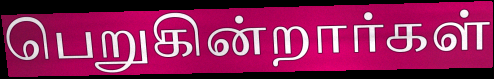
பெறுகின்றார்கள்